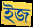
ইজ